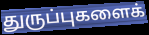
துருப்புகளைக்